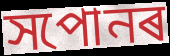
সপোনৰ